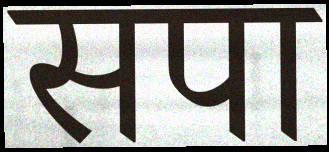
सपा